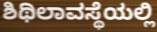
ಶಿಥಿಲಾವಸ್ಥೆಯಲ್ಲಿ